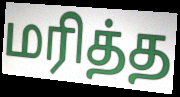
மரித்த